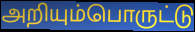
அறியும்பொருட்டு